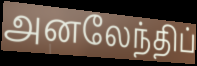
அனலேந்திப்